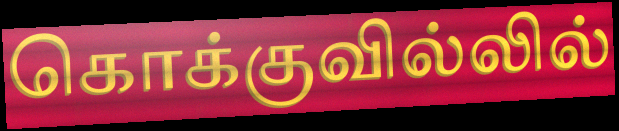
கொக்குவில்லில்